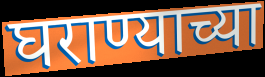
घराण्याच्या